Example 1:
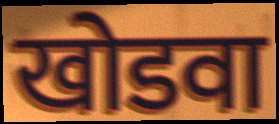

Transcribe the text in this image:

खोडवा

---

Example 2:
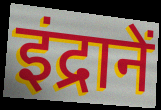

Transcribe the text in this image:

इंद्रानें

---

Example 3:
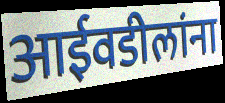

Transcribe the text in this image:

आईवडीलांना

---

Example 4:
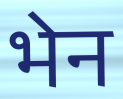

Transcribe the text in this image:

भेन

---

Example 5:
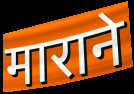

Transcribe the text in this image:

माराने